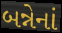
બન્નેનાં